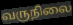
வருநிலை